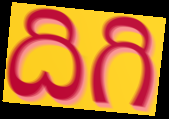
దిగి